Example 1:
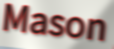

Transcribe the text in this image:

Mason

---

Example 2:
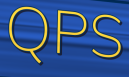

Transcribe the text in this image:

QPS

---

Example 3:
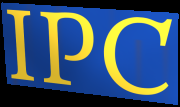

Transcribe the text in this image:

IPC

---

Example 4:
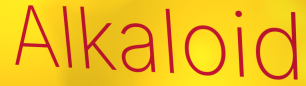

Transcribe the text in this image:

Alkaloid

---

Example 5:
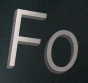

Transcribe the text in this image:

Fo